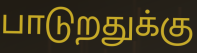
பாடுறதுக்கு